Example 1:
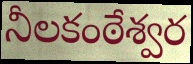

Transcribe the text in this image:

నీలకంఠేశ్వర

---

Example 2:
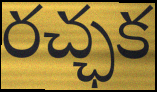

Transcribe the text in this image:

రచ్ఛక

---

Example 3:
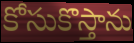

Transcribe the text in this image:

కోసుకొస్తాను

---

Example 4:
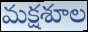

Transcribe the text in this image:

మక్షశూల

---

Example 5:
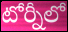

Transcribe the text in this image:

టోర్నీలో